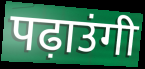
पढ़ाउंगी